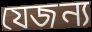
যেজন্য